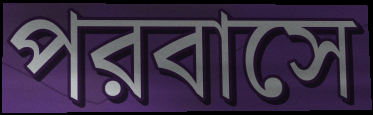
পরবাসে